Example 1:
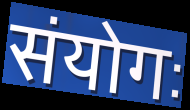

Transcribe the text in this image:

संयोगः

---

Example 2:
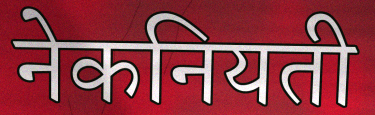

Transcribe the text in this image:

नेकनियती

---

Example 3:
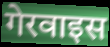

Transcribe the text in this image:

गेरवाइस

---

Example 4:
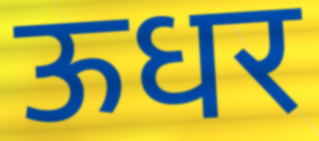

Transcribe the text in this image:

ऊधर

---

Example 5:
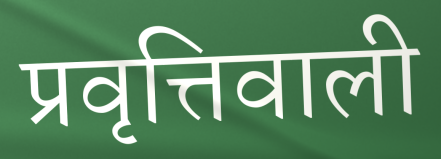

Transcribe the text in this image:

प्रवृत्तिवाली